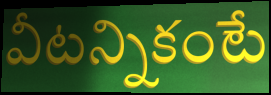
వీటన్నికంటే